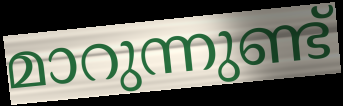
മാറുന്നുണ്ട്